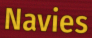
Navies